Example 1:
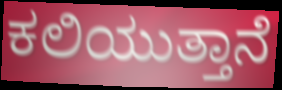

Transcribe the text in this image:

ಕಲಿಯುತ್ತಾನೆ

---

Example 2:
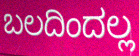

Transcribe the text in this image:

ಬಲದಿಂದಲ್ಲ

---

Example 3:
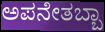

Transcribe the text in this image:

ಅಪನೇತಬ್ಬಾ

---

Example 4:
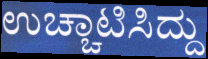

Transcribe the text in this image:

ಉಚ್ಚಾಟಿಸಿದ್ದು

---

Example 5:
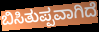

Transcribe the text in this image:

ಬಿಸಿತುಪ್ಪವಾಗಿದೆ